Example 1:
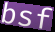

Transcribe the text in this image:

bsf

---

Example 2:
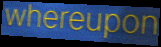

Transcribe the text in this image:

whereupon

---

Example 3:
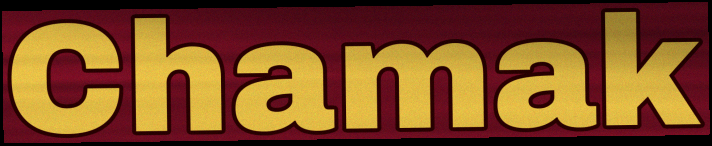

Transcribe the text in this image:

Chamak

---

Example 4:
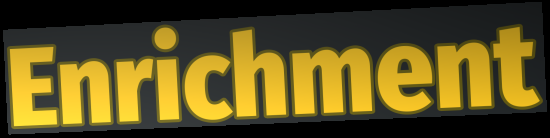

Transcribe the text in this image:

Enrichment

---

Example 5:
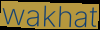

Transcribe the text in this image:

wakhat